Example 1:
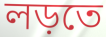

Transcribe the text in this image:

লড়তে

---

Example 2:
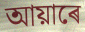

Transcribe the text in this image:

আয়াৰে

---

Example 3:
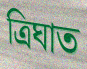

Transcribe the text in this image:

ত্ৰিঘাত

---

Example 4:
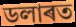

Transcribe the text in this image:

ডলাৰত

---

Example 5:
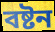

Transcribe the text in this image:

বষ্টন